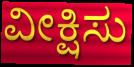
ವೀಕ್ಷಿಸು